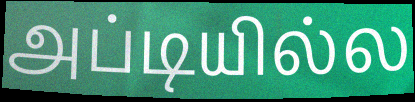
அப்டியில்ல